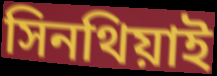
সিনথিয়াই